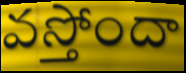
వస్తోందా